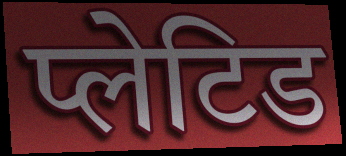
प्लेटिड